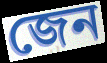
জেন